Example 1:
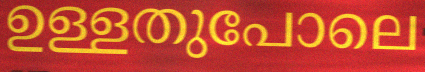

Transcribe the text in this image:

ഉള്ളതുപോലെ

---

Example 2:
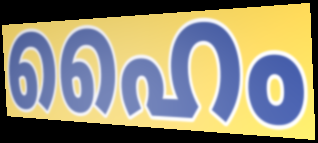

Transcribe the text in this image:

ഹൈം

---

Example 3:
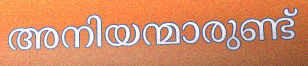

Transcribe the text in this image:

അനിയന്മാരുണ്ട്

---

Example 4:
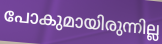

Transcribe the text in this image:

പോകുമായിരുന്നില്ല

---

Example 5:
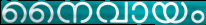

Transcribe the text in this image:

നൈവായം